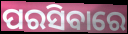
ପରସିବାରେ